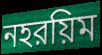
নহরয়িম